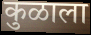
कुळाला